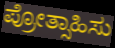
ಪ್ರೋತ್ಸಾಹಿಸು